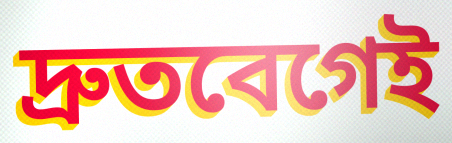
দ্রুতবেগেই